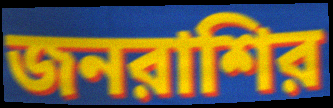
জনরাশির